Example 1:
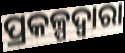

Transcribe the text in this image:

ପ୍ରକଳ୍ପଦ୍ୱାରା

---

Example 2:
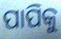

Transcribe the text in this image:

ପାପିକୁ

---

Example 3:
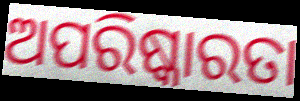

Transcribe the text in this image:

ଅପରିଷ୍କାରତା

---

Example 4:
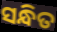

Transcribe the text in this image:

ସନ୍ଧିତ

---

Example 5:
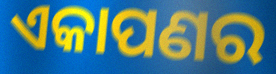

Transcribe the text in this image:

ଏକାପଣର